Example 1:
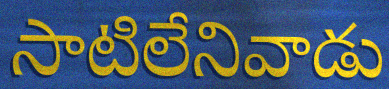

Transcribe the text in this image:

సాటిలేనివాడు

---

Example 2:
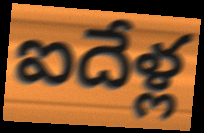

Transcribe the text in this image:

ఐదేళ్ల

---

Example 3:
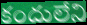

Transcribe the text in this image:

కందులేని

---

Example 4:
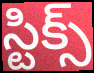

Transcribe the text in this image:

స్టిక్స్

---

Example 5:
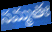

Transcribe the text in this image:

సమ్మతః